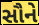
સૌને